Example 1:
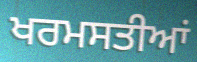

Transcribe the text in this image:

ਖਰਮਸਤੀਆਂ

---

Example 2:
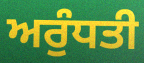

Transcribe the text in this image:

ਅਰੁੰਧਤੀ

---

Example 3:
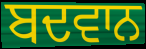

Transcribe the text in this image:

ਬਦਵਾਨ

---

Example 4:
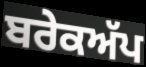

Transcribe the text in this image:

ਬਰੇਕਅੱਪ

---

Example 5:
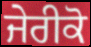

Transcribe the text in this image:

ਜੇਰੀਕੋ